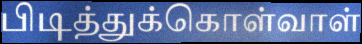
பிடித்துக்கொள்வாள்